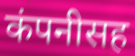
कंपनीसह